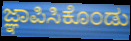
ಜ್ಞಾಪಿಸಿಕೊಂಡು